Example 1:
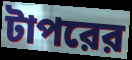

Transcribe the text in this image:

টাপরের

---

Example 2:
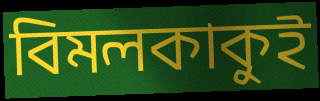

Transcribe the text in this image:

বিমলকাকুই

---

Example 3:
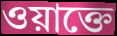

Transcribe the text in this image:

ওয়াক্তে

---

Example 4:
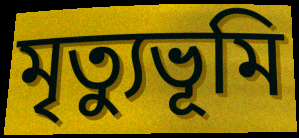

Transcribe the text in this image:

মৃত্যুভূমি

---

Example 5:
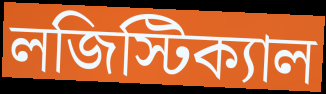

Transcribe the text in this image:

লজিস্টিক্যাল